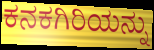
ಕನಕಗಿರಿಯನ್ನು